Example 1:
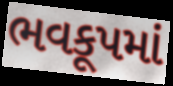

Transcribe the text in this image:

ભવકૂપમાં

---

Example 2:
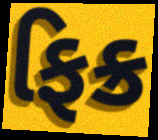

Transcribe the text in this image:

ફિક્ર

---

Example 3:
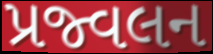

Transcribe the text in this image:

પ્રજ્વલન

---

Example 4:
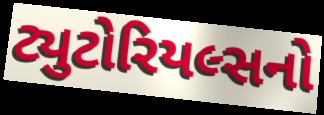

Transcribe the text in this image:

ટ્યુટોરિયલ્સનો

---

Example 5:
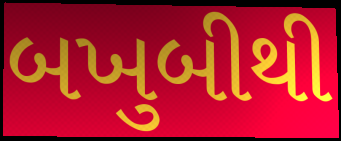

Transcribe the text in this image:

બખુબીથી